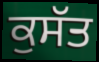
ਕੁਸੱਤ